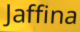
Jaffina